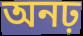
অনঢ়